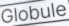
Globule